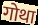
गोथा